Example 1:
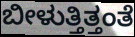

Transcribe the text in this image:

ಬೀಳುತ್ತಿತ್ತಂತೆ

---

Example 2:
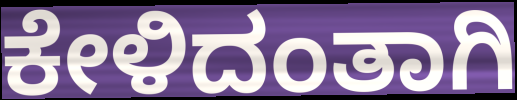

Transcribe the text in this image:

ಕೇಳಿದಂತಾಗಿ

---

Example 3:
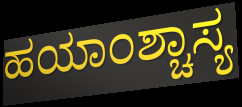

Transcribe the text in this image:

ಹಯಾಂಶ್ಚಾಸ್ಯ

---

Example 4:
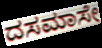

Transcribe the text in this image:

ದಸಮಾಸೇ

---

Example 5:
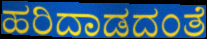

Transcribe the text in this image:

ಹರಿದಾಡದಂತೆ